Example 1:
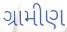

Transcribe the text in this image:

ગ્રામીણ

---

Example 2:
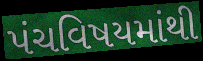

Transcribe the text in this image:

પંચવિષયમાંથી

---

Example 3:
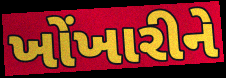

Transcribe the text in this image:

ખોંખારીને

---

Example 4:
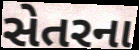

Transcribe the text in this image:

સેતરના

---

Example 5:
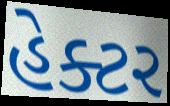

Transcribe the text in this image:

હેક્ટર